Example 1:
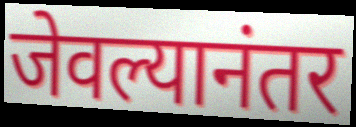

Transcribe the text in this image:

जेवल्यानंतर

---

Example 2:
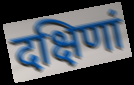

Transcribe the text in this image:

दक्षिणां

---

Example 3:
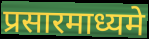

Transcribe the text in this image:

प्रसारमाध्यमे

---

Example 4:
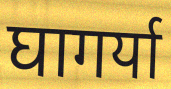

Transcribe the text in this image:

घागर्या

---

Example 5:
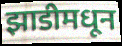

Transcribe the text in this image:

झाडीमधून